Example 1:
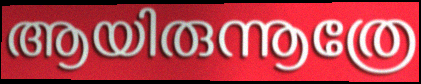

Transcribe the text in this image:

ആയിരുന്നൂത്രേ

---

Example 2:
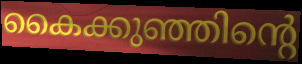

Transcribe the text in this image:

കൈക്കുഞ്ഞിന്റെ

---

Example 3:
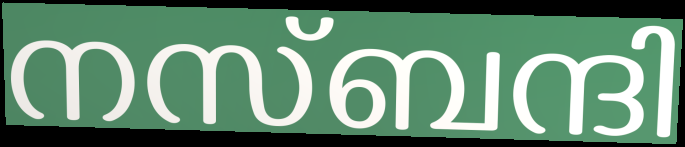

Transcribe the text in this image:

നസ്ബന്ദി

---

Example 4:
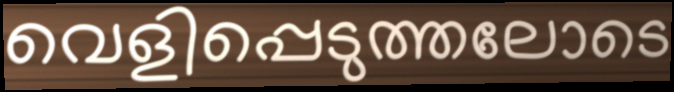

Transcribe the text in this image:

വെളിപ്പെടുത്തലോടെ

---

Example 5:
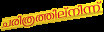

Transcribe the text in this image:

ചരിത്രത്തില്നിന്ന്